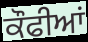
ਕੌਫੀਆਂ